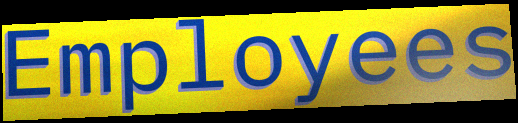
Employees